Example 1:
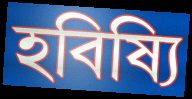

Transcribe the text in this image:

হবিষ্যি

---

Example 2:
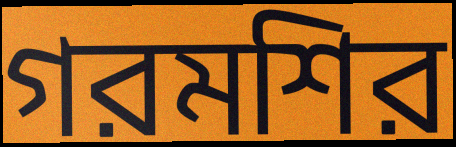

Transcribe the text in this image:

গরমশির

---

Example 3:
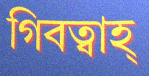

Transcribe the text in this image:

গিবত্বাহ্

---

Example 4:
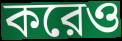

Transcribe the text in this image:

করেও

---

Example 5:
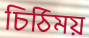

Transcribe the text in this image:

চিঠিময়